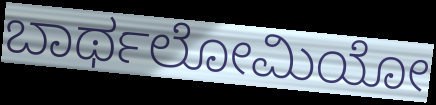
ಬಾರ್ಥಲೋಮಿಯೋ